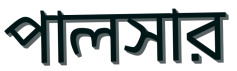
পালসার